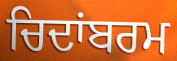
ਚਿਦਾਂਬਰਮ